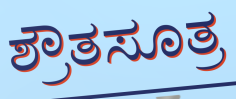
ಶ್ರೌತಸೂತ್ರ